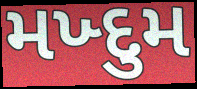
મખ્દુમ